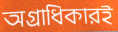
অগ্রাধিকারই